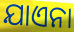
ଯାଏନା